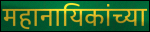
महानायिकांच्या